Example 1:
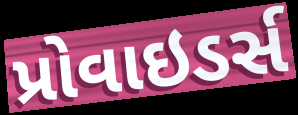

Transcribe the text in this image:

પ્રોવાઇડર્સ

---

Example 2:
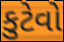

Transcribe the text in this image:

કુટેવો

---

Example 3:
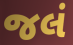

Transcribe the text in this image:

જલં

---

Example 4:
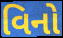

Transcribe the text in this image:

વિનો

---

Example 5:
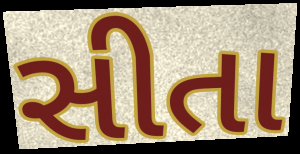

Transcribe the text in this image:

સીતા